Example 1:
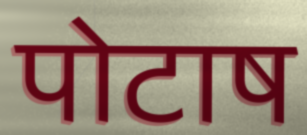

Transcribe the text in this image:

पोटाष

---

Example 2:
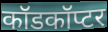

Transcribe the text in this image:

कॉडकॉप्टर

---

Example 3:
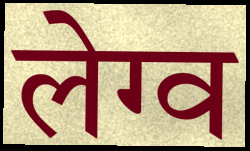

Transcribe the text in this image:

लेग्व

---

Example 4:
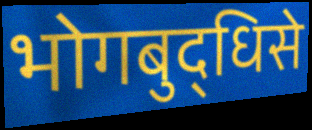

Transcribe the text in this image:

भोगबुद्धिसे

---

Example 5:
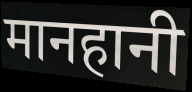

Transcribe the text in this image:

मानहानी